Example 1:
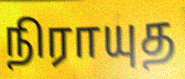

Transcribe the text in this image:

நிராயுத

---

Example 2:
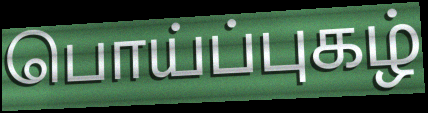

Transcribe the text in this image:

பொய்ப்புகழ்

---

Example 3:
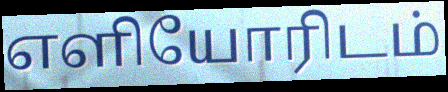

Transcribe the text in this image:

எளியோரிடம்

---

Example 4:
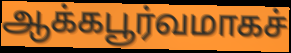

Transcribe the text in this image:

ஆக்கபூர்வமாகச்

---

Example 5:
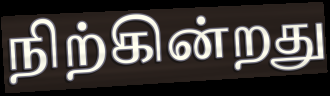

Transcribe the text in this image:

நிற்கின்றது